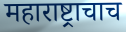
महाराष्ट्राचाच